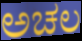
ಅಚಲ